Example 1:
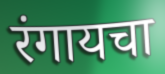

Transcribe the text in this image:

रंगायचा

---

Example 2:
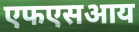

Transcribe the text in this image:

एफएसआय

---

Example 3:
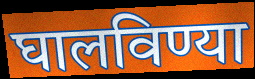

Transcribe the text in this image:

घालविण्या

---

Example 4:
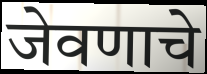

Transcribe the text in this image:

जेवणाचे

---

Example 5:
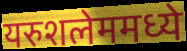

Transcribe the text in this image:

यरुशलेममध्ये